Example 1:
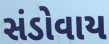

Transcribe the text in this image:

સંડોવાય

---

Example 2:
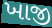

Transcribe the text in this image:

ખાજી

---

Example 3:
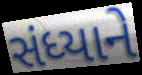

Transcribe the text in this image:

સંધ્યાને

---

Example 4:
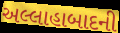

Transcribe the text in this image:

અલ્લાહાબાદની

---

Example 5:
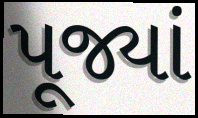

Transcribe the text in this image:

પૂજ્યાં